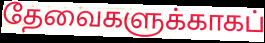
தேவைகளுக்காகப்